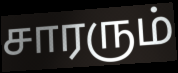
சாரரும்